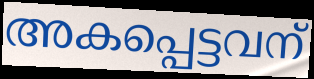
അകപ്പെട്ടവന്